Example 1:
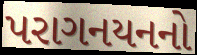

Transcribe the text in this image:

પરાગનયનનો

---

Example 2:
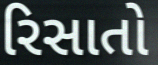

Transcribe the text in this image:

રિસાતો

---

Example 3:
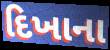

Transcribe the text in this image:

દિખાના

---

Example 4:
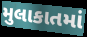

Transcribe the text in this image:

મુલાકાતમાં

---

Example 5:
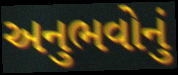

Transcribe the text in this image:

અનુભવોનું